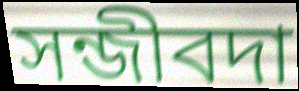
সন্জীবদা